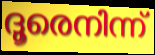
ദൂരെനിന്ന്